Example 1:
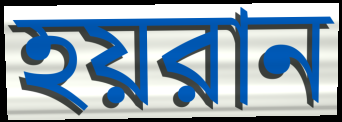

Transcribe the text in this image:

হয়রান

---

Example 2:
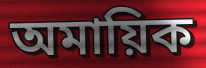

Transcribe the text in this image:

অমায়িক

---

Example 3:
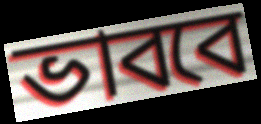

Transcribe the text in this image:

ভাববে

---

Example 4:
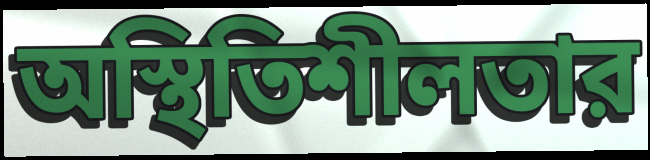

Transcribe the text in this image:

অস্থিতিশীলতার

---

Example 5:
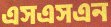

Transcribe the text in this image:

এসএসএন